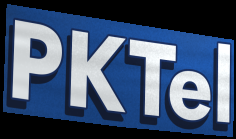
PKTel